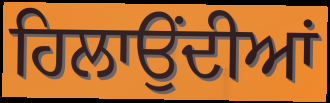
ਹਿਲਾਉਂਦੀਆਂ